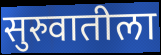
सुरुवातीला